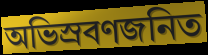
অভিস্রবণজনিত